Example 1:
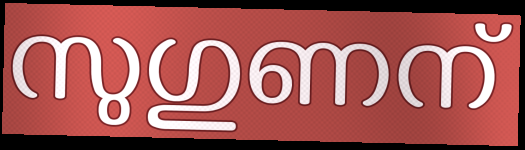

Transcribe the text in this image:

സുഗുണന്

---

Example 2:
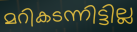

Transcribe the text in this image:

മറികടന്നിട്ടില്ല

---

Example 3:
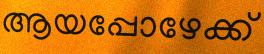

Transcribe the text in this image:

ആയപ്പോഴേക്ക്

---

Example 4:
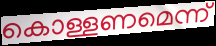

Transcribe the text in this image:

കൊള്ളണമെന്ന്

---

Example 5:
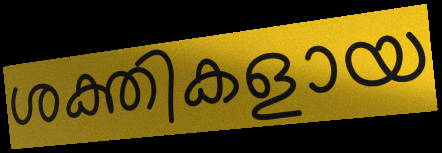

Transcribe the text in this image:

ശക്തികളായ